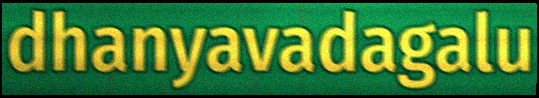
dhanyavadagalu